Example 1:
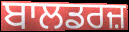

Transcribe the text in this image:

ਬਾਲਡਰਜ਼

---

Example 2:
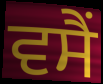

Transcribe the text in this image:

ਵਸੈਂ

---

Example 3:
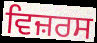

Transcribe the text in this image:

ਵਿਜ਼ਰਸ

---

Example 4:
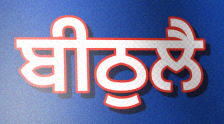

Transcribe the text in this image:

ਬੀਠੁਲੈ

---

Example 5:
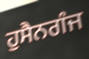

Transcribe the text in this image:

ਹੁਸੈਨਗੰਜ